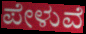
ಪೇಳುವೆ